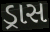
ડ્રાસ